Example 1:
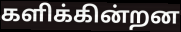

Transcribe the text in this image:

களிக்கின்றன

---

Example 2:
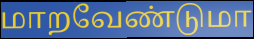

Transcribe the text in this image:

மாறவேண்டுமா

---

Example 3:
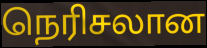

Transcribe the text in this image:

நெரிசலான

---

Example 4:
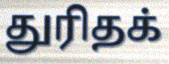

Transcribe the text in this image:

துரிதக்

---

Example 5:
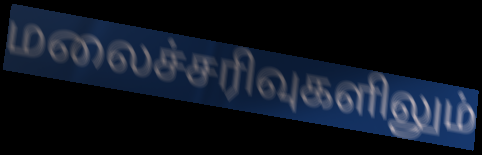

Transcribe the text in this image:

மலைச்சரிவுகளிலும்